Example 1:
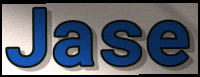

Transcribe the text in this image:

Jase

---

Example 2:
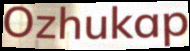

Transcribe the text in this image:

Ozhukap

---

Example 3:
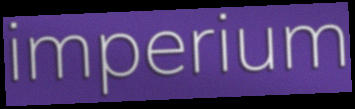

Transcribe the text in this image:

imperium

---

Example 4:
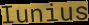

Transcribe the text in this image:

Iunius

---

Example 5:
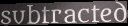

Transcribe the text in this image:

subtracted